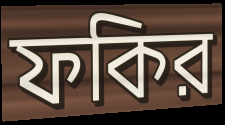
ফকির